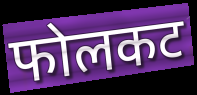
फोलकट